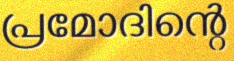
പ്രമോദിന്റെ